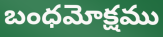
బంధమోక్షము